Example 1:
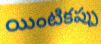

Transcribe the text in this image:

యింటికప్పు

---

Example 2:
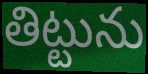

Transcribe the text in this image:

తిట్టును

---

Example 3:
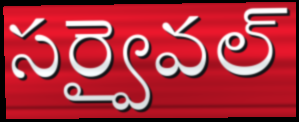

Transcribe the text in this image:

సర్వైవల్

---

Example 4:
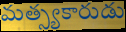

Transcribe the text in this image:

మత్స్యకారుడు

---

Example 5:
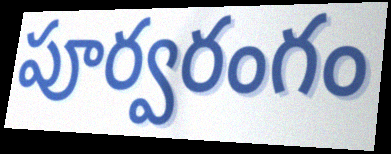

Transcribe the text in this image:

పూర్వరంగం